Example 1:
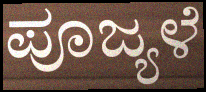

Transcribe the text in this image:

ಪೂಜ್ಯಳೆ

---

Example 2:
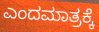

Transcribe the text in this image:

ಎಂದಮಾತ್ರಕ್ಕೆ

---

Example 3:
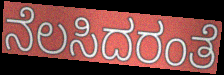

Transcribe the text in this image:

ನೆಲಸಿದರಂತೆ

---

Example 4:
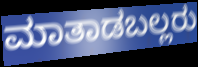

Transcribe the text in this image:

ಮಾತಾಡಬಲ್ಲರು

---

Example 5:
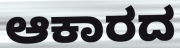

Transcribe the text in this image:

ಆಕಾರದ